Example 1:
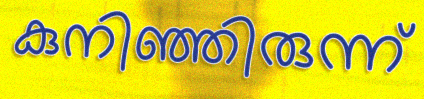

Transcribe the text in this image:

കുനിഞ്ഞിരുന്ന്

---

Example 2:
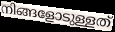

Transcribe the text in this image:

നിങ്ങളോടുള്ളത്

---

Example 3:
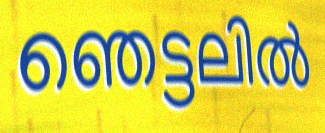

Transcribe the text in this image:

ഞെട്ടലിൽ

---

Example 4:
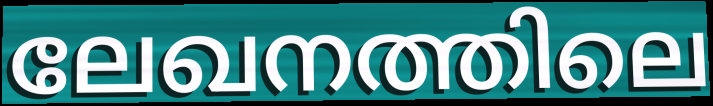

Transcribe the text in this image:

ലേഖനത്തിലെ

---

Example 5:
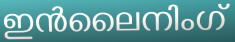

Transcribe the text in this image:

ഇൻലൈനിംഗ്